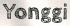
Yonggi